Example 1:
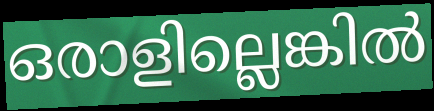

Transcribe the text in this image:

ഒരാളില്ലെങ്കിൽ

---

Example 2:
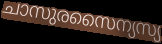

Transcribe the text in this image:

ചാസുരസൈന്യസ്യ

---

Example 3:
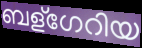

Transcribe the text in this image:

ബള്ഗേറിയ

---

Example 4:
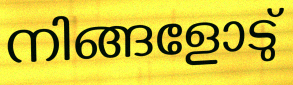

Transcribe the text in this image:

നിങ്ങളോടു്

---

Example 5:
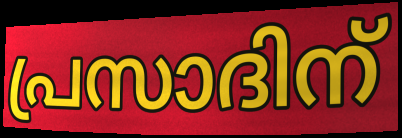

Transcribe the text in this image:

പ്രസാദിന്